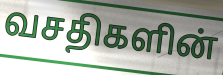
வசதிகளின்